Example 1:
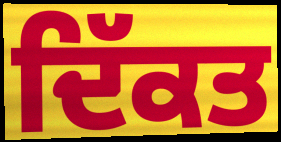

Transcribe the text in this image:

ਦਿੱਕਤ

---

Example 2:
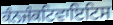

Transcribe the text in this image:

ਕੰਨਜੰਕਟਿਵਾਇਟਿਸ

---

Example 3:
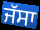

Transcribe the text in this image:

ਜੱਸਾ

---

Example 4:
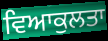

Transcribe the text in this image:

ਵਿਆਕੁਲਤਾ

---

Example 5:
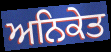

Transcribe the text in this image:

ਅਨਿਕੇਤ